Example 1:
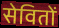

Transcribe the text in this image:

सेवितों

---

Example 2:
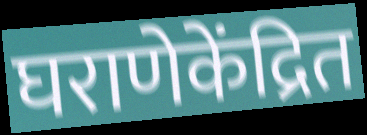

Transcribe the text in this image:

घराणेकेंद्रित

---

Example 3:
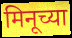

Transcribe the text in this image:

मिनूच्या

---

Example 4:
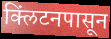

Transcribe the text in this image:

क्लिंटनपासून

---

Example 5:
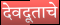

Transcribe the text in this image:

देवदूताचे